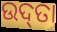
ଉଦ୍‌ତା